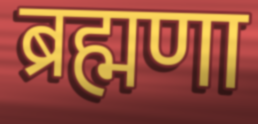
ब्रह्मणा